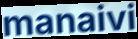
manaivi